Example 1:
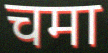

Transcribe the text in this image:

चमा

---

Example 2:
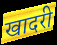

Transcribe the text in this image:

खादरी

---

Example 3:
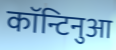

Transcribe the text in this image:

कॉन्टिनुआ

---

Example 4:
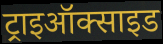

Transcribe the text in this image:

ट्राइऑक्साइड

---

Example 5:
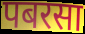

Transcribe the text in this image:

पबरसा